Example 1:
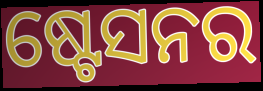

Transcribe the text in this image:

ଷ୍ଟେସନର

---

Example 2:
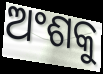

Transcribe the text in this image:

ଅଂଶକୁ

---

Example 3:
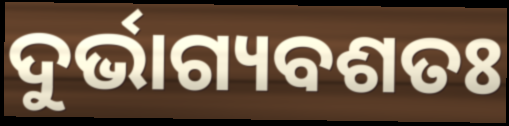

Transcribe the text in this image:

ଦୁର୍ଭାଗ୍ୟବଶତଃ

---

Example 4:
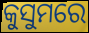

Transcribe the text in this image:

କୁସୁମରେ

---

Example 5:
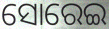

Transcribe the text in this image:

ସୋରେଇ